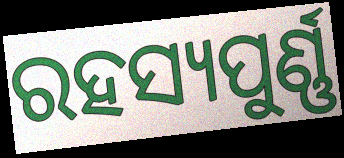
ରହସ୍ୟପୁର୍ଣ୍ଣ